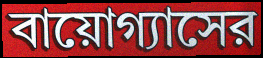
বায়োগ্যাসের